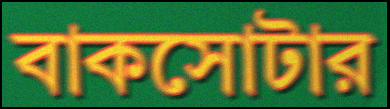
বাকসোটার